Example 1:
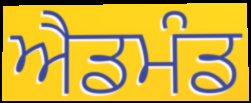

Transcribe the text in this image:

ਐਡਮੰਡ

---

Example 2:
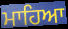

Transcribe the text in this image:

ਮਾਹਿਆ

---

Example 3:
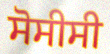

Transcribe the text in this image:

ਸੋਸੀਸੀ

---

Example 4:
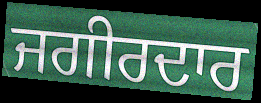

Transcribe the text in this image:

ਜਗੀਰਦਾਰ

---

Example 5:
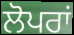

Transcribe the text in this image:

ਲੋਪਰਾਂ